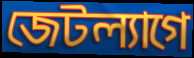
জেটল্যাগে